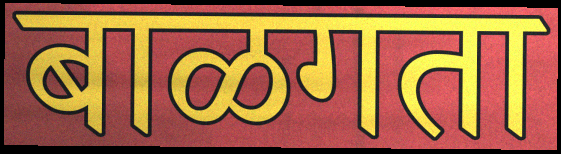
बाळगता